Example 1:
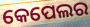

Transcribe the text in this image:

କେପେଲର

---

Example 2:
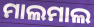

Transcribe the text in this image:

ମାଲମାଲ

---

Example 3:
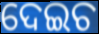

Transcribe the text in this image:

ଦେଇଚ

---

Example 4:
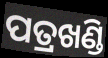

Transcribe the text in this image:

ପତ୍ରଖଣ୍ଡି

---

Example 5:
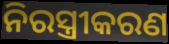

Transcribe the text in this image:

ନିରସ୍ତ୍ରୀକରଣ